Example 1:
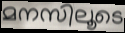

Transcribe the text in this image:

മനസിലൂടെ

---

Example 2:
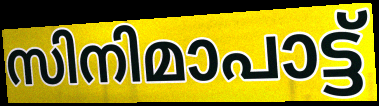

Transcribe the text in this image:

സിനിമാപാട്ട്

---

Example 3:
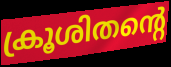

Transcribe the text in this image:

ക്രൂശിതന്റെ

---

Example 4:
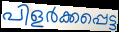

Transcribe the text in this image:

പിളർക്കപ്പെട്ട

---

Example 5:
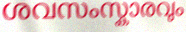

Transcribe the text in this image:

ശവസംസ്കാരവും